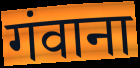
गंवाना